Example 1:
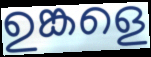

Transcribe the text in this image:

ഉങ്കളെ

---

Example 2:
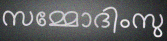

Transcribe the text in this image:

സമ്മോദിംസു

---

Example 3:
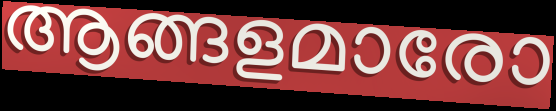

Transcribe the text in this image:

ആങ്ങളമാരോ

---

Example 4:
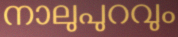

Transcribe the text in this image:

നാലുപുറവും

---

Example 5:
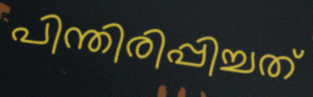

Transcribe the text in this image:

പിന്തിരിപ്പിച്ചത്